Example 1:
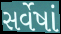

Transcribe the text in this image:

સર્વેષાં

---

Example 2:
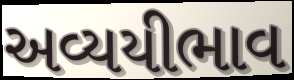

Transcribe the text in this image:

અવ્યયીભાવ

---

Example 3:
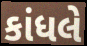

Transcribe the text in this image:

કાંધલે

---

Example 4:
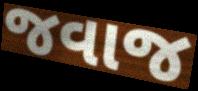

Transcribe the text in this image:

જવાજ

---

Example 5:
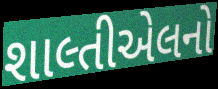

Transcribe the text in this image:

શાલ્તીએલનો